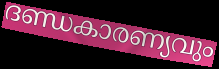
ദണ്ഡകാരണ്യവും